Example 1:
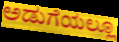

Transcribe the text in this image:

ಅಡುಗೆಯಲ್ಲೂ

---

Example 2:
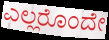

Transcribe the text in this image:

ಎಲ್ಲರೊಂದೇ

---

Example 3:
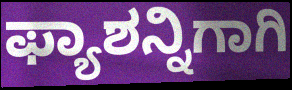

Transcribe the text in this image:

ಫ್ಯಾಶನ್ನಿಗಾಗಿ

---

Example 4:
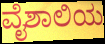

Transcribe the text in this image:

ವೈಶಾಲಿಯ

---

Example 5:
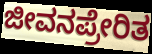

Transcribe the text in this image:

ಜೀವನಪ್ರೇರಿತ